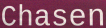
Chasen